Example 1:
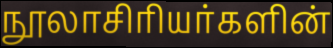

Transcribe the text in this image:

நூலாசிரியர்களின்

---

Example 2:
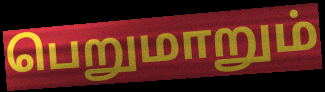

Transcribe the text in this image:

பெறுமாறும்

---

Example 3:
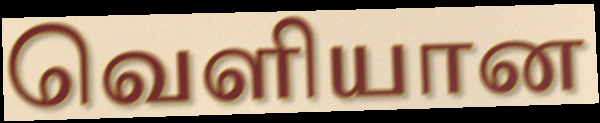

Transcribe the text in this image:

வெளியான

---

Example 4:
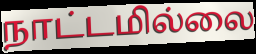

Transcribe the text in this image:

நாட்டமில்லை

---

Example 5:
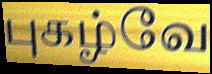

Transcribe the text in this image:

புகழ்வே